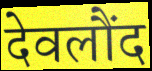
देवलौंद